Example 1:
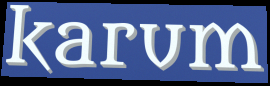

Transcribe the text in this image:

karum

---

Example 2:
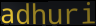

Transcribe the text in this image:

adhuri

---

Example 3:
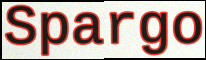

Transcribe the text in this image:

Spargo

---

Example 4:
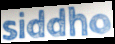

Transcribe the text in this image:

siddho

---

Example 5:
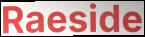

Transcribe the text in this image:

Raeside